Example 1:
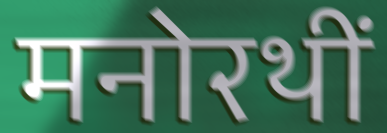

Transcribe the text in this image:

मनोरथीं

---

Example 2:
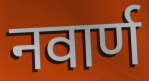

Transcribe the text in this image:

नवार्ण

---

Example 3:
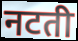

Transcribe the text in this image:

नटती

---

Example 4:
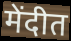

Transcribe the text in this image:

मेंदीत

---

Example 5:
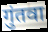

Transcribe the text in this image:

गुंतवा